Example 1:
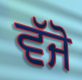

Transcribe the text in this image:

ਵੱਜੋ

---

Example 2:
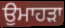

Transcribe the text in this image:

ਉਮਾਹੜਾ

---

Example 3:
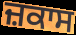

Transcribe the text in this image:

ਜ਼ਕਾਸ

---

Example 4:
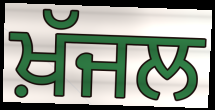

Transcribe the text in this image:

ਖ਼ੱਜਲ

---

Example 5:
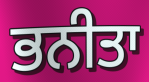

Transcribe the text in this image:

ਭਨੀਤਾ